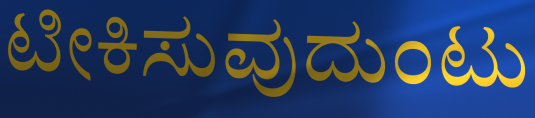
ಟೀಕಿಸುವುದುಂಟು